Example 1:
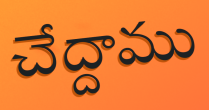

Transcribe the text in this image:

చేద్దాము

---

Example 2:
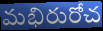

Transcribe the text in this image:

మభిరురోచ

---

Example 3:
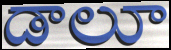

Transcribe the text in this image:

డాలూ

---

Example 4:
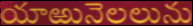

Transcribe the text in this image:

యాఱునెలలును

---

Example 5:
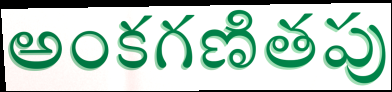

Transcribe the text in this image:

అంకగణితపు